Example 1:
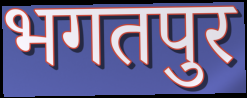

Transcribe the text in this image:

भगतपुर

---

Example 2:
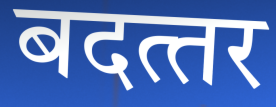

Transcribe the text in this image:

बदत्‍तर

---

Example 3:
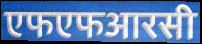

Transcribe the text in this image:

एफएफआरसी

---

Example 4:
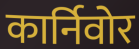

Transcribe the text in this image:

कार्निवोर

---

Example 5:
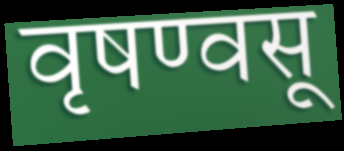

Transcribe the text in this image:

वृषण्वसू